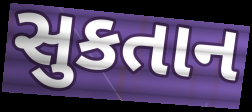
સુકતાન